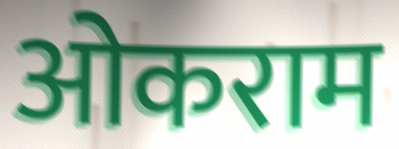
ओकराम